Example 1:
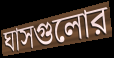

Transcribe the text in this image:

ঘাসগুলোর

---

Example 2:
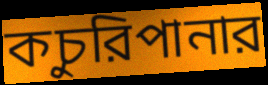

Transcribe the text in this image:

কচুরিপানার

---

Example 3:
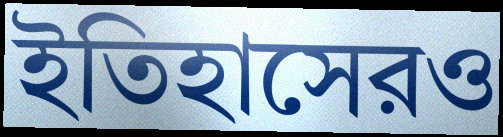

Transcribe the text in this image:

ইতিহাসেরও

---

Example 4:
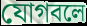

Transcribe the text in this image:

যোগবলে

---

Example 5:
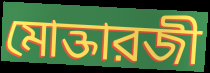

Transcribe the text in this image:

মোক্তারজী